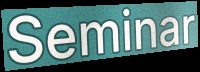
Seminar